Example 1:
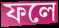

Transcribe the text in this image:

ফলে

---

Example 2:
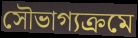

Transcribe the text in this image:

সৌভাগ্যক্রমে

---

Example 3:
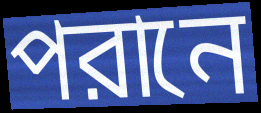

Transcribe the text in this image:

পরানে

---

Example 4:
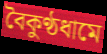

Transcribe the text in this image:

বৈকুণ্ঠধামে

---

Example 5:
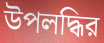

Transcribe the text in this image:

উপলদ্ধির